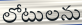
లోటులను